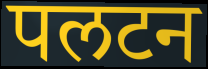
पलटन